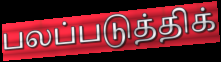
பலப்படுத்திக்